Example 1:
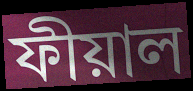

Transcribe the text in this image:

ফীয়াল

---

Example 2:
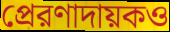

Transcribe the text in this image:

প্রেরণাদায়কও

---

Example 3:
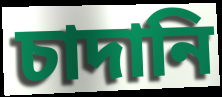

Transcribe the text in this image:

চাদানি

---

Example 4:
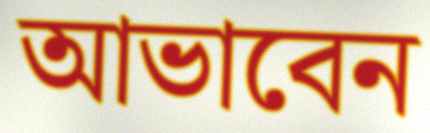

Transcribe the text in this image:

আভাবেন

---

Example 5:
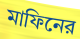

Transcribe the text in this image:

মাফিনের